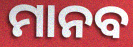
ମାନବ